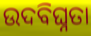
ଉଦବିଘ୍ନତା